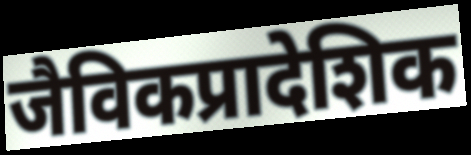
जैविकप्रादेशिक